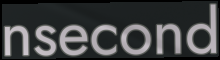
nsecond